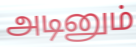
அடினும்